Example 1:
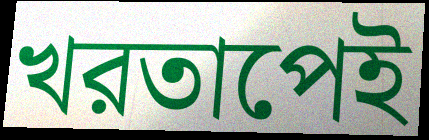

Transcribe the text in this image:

খরতাপেই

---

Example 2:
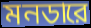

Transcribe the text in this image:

মনডারে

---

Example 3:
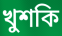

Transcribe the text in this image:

খুশকি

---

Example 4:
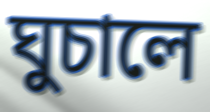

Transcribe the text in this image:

ঘুচালে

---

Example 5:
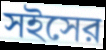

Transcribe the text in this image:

সইসের